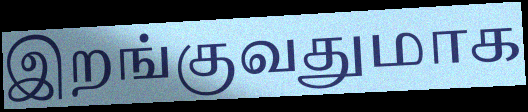
இறங்குவதுமாக